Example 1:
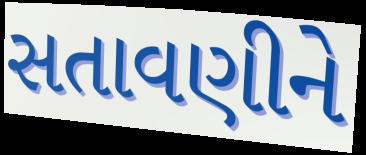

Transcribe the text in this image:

સતાવણીને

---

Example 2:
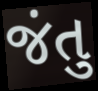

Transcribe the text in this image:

જંતુ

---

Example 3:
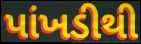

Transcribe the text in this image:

પાંખડીથી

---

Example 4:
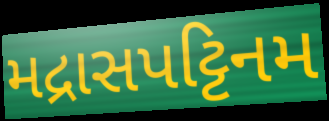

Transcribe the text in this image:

મદ્રાસપટ્ટિનમ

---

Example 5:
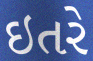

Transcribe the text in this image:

ઇતરે